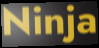
Ninja